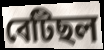
বেটিছল